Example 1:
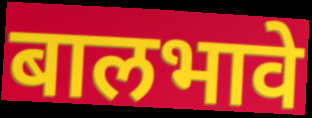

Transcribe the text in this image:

बालभावे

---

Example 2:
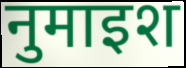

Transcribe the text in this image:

नुमाइश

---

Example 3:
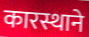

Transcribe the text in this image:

कारस्थाने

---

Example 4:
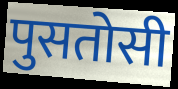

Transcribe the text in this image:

पुसतोसी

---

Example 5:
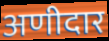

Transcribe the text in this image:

अणीदार